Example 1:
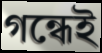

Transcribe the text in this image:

গন্ধেই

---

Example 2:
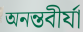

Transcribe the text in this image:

অনন্তবীর্যা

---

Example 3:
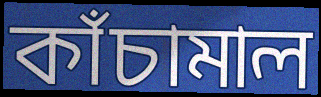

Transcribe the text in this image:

কাঁচামাল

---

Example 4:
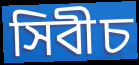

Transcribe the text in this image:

সিবীচ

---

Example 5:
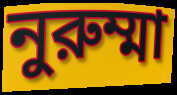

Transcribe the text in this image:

নুরুম্মা